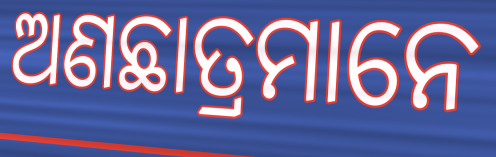
ଅଣଛାତ୍ରମାନେ